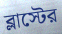
ব্লাস্টের